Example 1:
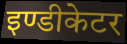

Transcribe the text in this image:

इण्डीकेटर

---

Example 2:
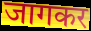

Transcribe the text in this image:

जागकर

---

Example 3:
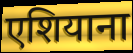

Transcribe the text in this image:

एशियाना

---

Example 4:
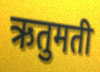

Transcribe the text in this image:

ऋतुमती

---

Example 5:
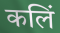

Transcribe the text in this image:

कलिं